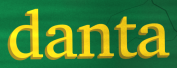
danta